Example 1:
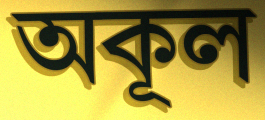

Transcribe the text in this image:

অকূল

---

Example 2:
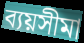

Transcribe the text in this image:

ব্যয়সীমা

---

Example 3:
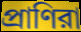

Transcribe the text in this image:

প্রাণিরা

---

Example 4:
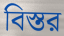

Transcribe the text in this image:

বিস্তর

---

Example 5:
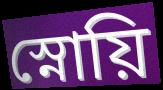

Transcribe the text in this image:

স্নোয়ি